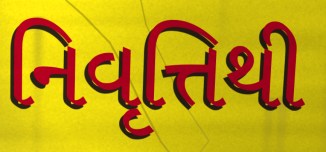
નિવૃત્તિથી